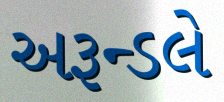
અરૂન્ડલે